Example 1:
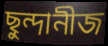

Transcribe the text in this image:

ছুন্দানীজ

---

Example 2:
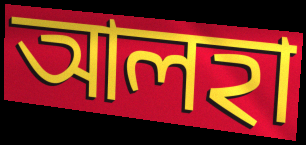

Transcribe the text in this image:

আলহা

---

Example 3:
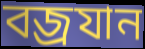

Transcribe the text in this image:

বজ্ৰযান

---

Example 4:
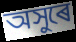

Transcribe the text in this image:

অসুৰে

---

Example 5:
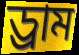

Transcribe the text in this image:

ড্ৰাম